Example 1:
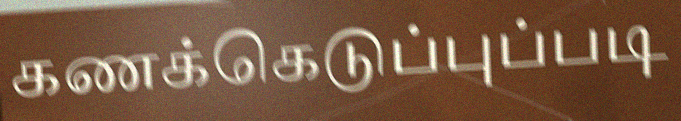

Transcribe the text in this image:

கணக்கெடுப்புப்படி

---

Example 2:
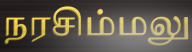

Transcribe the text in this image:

நரசிம்மலு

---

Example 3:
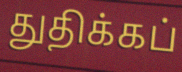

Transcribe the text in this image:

துதிக்கப்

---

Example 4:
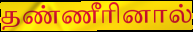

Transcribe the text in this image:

தண்ணீரினால்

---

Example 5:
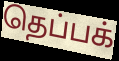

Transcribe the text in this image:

தெப்பக்